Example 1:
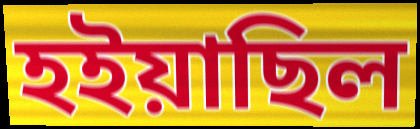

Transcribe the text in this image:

হইয়াছিল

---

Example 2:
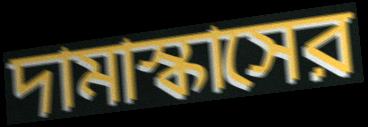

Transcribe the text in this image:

দামাস্কাসের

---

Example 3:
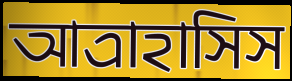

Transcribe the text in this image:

আত্রাহাসিস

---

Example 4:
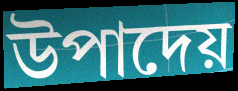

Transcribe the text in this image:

উপাদেয়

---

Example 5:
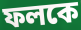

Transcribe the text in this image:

ফলকে